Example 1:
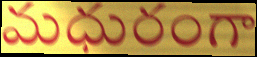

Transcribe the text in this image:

మధురంగా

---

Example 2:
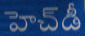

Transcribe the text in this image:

హెచ్‌డీ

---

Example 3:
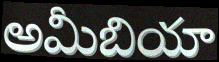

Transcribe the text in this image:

అమీబియా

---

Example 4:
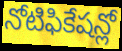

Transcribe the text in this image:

నోటిఫికేషన్లో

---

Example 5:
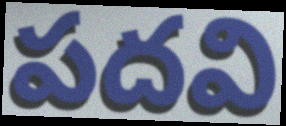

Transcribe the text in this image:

పదవి